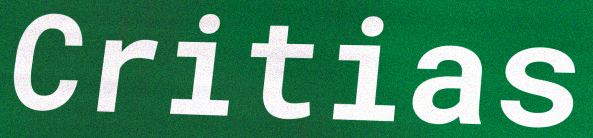
Critias